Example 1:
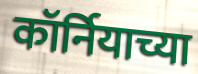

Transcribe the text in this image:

कॉर्नियाच्या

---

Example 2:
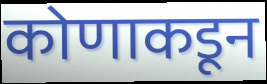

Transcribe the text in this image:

कोणाकडून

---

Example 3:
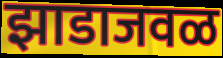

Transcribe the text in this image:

झाडाजवळ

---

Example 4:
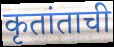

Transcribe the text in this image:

कृतांताची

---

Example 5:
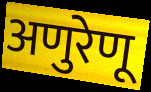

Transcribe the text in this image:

अणुरेणू